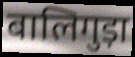
बालिगुड़ा